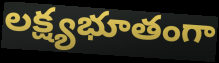
లక్ష్యభూతంగా